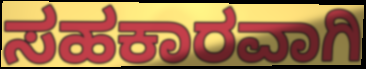
ಸಹಕಾರವಾಗಿ